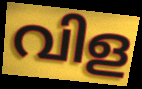
വിള